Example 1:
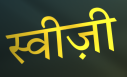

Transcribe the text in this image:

स्वीज़ी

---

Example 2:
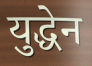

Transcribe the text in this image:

युद्धेन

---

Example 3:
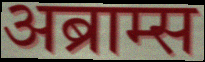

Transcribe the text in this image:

अब्राम्स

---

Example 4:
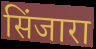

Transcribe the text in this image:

सिंजारा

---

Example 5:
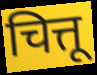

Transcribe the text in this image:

चित्तू